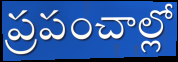
ప్రపంచాల్లో